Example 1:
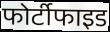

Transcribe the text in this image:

फोर्टीफाइड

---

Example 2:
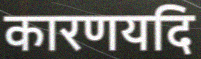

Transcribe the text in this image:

कारणयदि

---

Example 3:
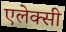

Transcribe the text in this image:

एलेक्सी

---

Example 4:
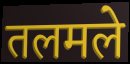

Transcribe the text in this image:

तलमले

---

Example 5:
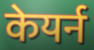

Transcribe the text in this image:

केयर्न